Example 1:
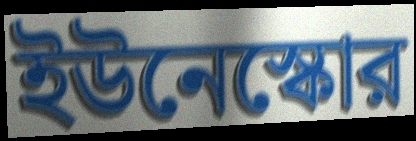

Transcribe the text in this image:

ইউনেস্কোর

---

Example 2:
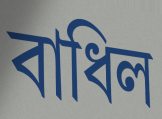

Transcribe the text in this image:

বাধিল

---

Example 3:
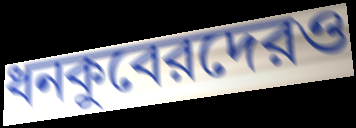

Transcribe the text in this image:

ধনকুবেরদেরও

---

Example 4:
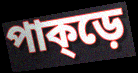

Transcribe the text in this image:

পাক্ড়ে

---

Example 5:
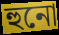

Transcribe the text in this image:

হুনো